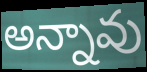
అన్నావు